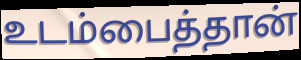
உடம்பைத்தான்